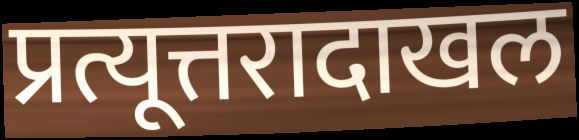
प्रत्यूत्तरादाखल